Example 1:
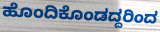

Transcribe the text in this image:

ಹೊಂದಿಕೊಂಡದ್ದರಿಂದ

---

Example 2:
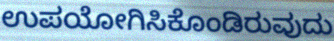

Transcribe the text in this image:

ಉಪಯೋಗಿಸಿಕೊಂಡಿರುವುದು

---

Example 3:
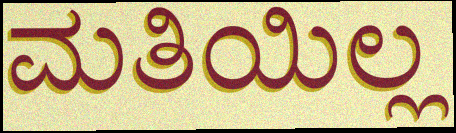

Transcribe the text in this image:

ಮತಿಯಿಲ್ಲ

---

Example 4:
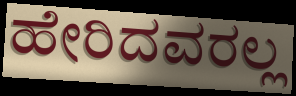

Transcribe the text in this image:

ಹೇರಿದವರಲ್ಲ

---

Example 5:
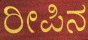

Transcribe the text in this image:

ರೀಪಿನ